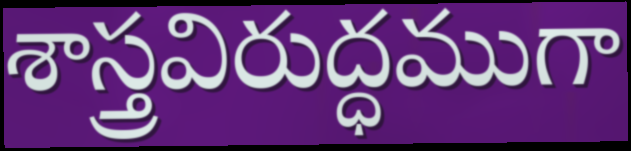
శాస్త్రవిరుద్ధముగా